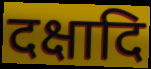
दक्षादि